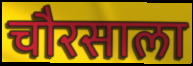
चौरसाला